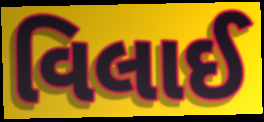
વિલાઈ